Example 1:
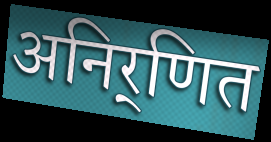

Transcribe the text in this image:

अनिर्णित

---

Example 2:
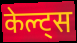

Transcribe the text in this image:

केल्ट्स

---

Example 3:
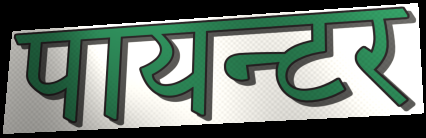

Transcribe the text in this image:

पायन्टर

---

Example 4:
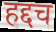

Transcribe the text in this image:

हद्दच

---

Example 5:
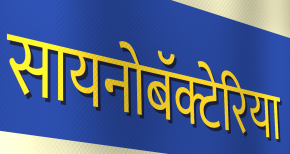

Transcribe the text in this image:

सायनोबॅक्टेरिया